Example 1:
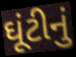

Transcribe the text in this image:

ઘૂંટીનું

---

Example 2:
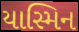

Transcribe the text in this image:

યાસ્મિન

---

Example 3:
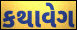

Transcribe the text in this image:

કથાવેગ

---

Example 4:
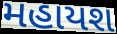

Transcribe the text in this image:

મહાયશ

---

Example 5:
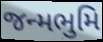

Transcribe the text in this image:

જન્મભુમિ